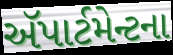
ઍપાર્ટમેન્ટના